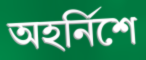
অহৰ্নিশে